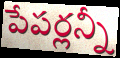
పేపర్లన్నీ